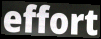
effort